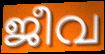
ജീവ